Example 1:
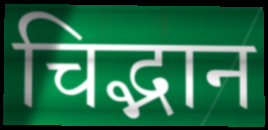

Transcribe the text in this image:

चिद्भान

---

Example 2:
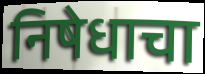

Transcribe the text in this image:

निषेधाचा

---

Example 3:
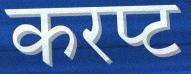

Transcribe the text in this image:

करप्ट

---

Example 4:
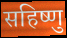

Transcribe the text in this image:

सहिष्णु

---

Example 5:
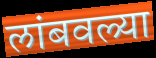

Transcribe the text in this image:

लांबवल्या